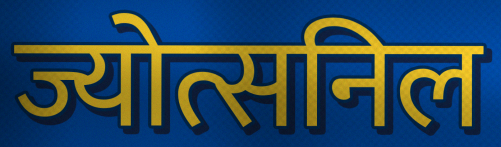
ज्योत्सनिल